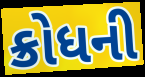
ક્રોધની